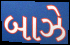
બાઝે